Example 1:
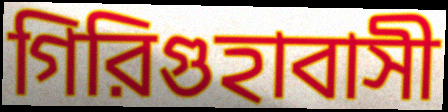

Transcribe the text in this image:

গিরিগুহাবাসী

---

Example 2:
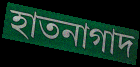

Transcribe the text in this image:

হাতনাগাদ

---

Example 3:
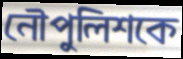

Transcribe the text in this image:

নৌপুলিশকে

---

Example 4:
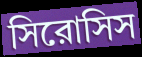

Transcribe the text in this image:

সিরোসিস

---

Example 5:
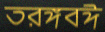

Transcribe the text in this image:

তরঙ্গবঈ